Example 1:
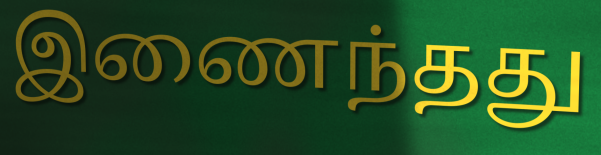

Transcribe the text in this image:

இணைந்தது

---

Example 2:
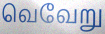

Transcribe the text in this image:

வெவேறு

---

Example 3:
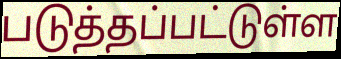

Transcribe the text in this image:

படுத்தப்பட்டுள்ள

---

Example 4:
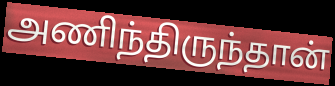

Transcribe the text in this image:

அணிந்திருந்தான்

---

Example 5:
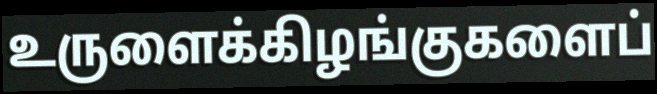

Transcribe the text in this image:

உருளைக்கிழங்குகளைப்